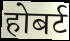
होबर्ट